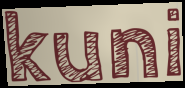
kuni